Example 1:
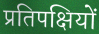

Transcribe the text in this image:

प्रतिपक्षियों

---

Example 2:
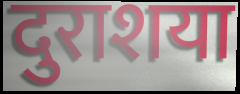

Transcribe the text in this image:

दुराशया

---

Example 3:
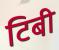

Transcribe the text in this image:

टिबी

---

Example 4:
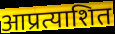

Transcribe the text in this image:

आप्रत्याशित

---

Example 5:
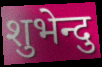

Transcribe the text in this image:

शुभेन्दु